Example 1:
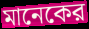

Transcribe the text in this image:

মানেকের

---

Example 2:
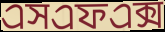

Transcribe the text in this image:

এসএফএক্স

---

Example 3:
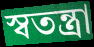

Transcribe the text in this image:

স্বতন্ত্রা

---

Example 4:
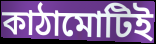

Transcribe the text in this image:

কাঠামোটিই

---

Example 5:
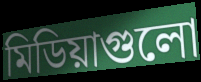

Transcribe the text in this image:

মিডিয়াগুলো